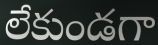
లేకుండగా